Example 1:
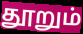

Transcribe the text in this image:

தூறும்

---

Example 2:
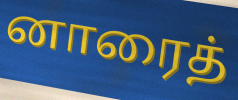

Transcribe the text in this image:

னாரைத்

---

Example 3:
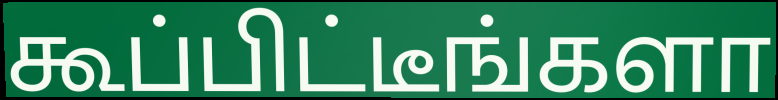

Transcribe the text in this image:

கூப்பிட்டீங்களா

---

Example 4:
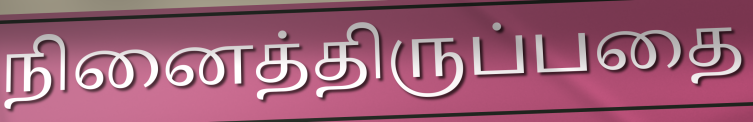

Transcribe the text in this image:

நினைத்திருப்பதை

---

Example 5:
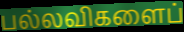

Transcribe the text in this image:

பல்லவிகளைப்